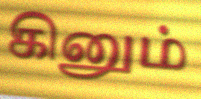
கினும்